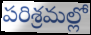
పరిశ్రమల్లో